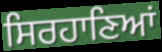
ਸਿਰਹਾਣਿਆਂ